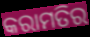
କରାମତିର